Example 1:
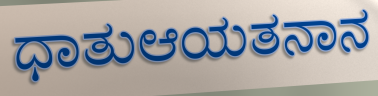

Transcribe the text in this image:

ಧಾತುಆಯತನಾನ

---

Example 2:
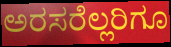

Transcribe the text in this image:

ಅರಸರೆಲ್ಲರಿಗೂ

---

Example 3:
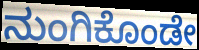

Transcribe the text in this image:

ನುಂಗಿಕೊಂಡೇ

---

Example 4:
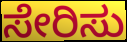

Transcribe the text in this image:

ಸೇರಿಸು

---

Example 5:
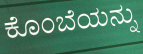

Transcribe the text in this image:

ಕೊಂಬೆಯನ್ನು